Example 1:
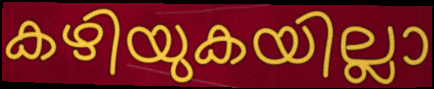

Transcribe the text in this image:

കഴിയുകയില്ലാ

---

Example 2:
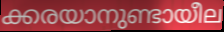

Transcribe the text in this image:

ക്കരയാനുണ്ടായീല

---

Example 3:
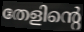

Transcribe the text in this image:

തേളിന്റെ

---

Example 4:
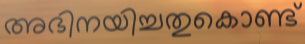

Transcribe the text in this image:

അഭിനയിച്ചതുകൊണ്ട്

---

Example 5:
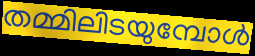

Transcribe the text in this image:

തമ്മിലിടയുമ്പോൾ